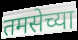
तमसेच्या